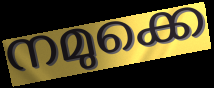
നമുക്കെ